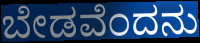
ಬೇಡವೆಂದನು